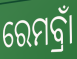
ରେମବ୍ରାଁ